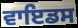
ਵਾਇਡਸ